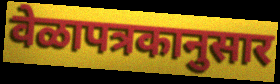
वेळापत्रकानुसार